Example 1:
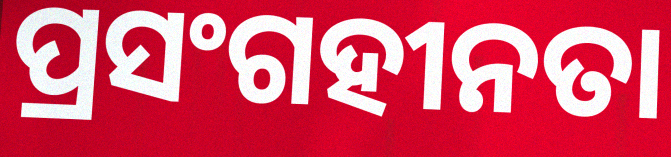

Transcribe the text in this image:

ପ୍ରସଂଗହୀନତା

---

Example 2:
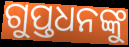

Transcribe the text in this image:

ଗୁପ୍ତଧନଙ୍କୁ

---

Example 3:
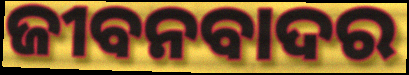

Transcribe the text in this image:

ଜୀବନବାଦର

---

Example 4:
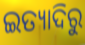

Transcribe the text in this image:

ଇତ୍ୟାଦିରୁ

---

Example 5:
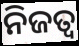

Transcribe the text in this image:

ନିଜତ୍ବ